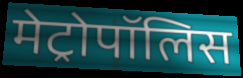
मेट्रोपॉलिस